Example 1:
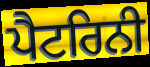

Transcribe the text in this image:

ਪੈਟਰਿਨੀ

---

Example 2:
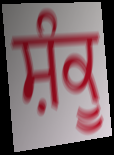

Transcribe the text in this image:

ਸ਼ੰਕੂ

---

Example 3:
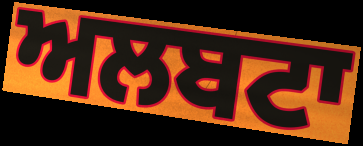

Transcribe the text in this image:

ਅਲਬਟਾ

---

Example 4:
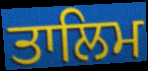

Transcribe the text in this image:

ਤਾਲਿਮ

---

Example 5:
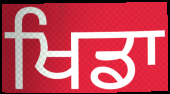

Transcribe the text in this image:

ਖਿਡਾ